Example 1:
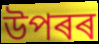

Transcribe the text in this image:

উপৰৰ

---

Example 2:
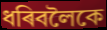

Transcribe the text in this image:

ধৰিবলৈকে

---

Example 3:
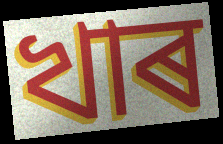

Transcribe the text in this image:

খাৰ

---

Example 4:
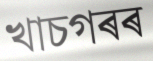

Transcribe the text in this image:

খাচগৰৰ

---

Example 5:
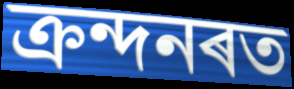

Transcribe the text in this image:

ক্ৰন্দনৰত